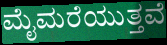
ಮೈಮರೆಯುತ್ತವೆ